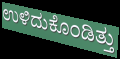
ಉಳಿದುಕೊಂಡಿತ್ತು